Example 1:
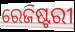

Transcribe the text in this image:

ରେଜିଷ୍ଟରୀ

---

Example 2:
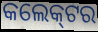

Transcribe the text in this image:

କଲେକ୍‌ଟର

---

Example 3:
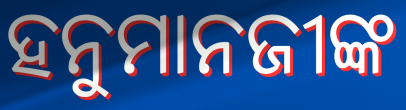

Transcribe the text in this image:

ହନୁମାନଜୀଙ୍କ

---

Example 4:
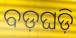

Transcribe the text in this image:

ବଡ଼ଘଡ଼ି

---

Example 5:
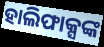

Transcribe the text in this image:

ହାଲିଫାକ୍ସଙ୍କ